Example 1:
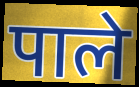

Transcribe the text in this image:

पाले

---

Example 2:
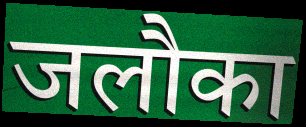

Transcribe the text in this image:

जलौका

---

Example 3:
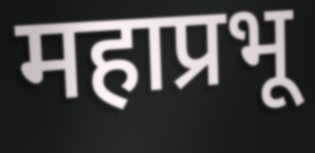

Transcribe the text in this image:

महाप्रभू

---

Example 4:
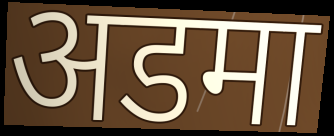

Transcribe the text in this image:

अडमा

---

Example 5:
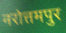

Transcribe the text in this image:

नरोत्तमपुर